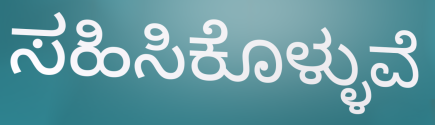
ಸಹಿಸಿಕೊಳ್ಳುವೆ